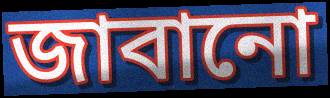
জাবানো